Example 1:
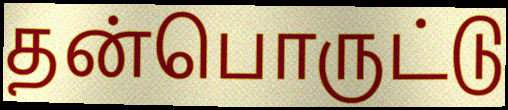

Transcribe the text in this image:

தன்பொருட்டு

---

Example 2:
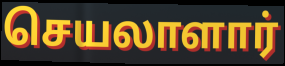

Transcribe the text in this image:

செயலாளார்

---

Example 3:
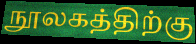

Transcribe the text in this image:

நூலகத்திற்கு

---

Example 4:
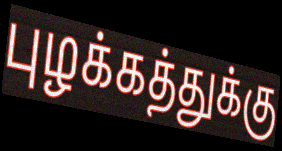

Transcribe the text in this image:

புழக்கத்துக்கு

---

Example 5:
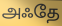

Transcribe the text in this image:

அஃதே